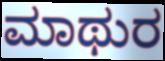
ಮಾಥುರ